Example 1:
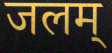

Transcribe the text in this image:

जलम्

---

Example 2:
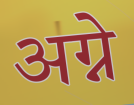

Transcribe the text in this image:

अग्ने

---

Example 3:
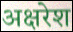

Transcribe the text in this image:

अक्षरेश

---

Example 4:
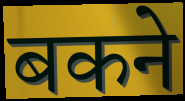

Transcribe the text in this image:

बकने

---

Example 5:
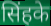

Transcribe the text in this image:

सिंहके